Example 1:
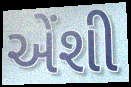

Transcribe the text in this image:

એંશી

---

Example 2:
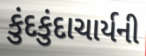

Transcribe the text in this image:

કુંદકુંદાચાર્યની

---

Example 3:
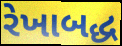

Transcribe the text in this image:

રેખાબદ્ધ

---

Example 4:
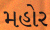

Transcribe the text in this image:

મહોર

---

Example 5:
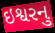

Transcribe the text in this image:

ઇશ્વરનુ